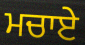
ਮਚਾਏ